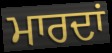
ਮਾਰਦਾਂ